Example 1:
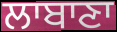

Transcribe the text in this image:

ਲਾਬਾਣਾ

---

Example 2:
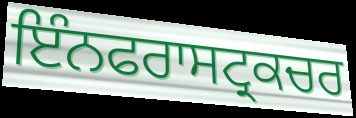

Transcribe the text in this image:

ਇੰਨਫਰਾਸਟ੍ਰਕਚਰ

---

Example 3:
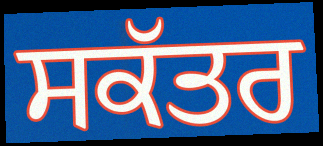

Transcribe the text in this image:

ਸਕੱਤਰ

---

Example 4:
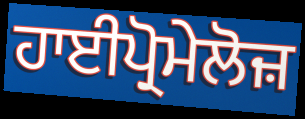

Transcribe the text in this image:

ਹਾਈਪ੍ਰੋਮੇਲੋਜ਼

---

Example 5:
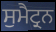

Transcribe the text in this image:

ਸੁਮੈਟ੍ਰਨ